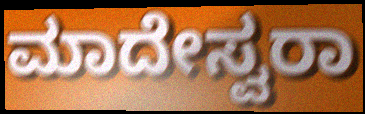
ಮಾದೇಸ್ವರಾ